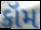
કૉમ